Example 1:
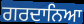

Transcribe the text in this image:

ਗਰਦਾਨਿਆ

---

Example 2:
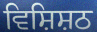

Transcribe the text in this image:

ਵਿਸ਼ਿਸ਼ਠ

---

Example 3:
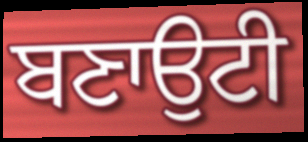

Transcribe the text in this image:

ਬਣਾਉਟੀ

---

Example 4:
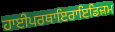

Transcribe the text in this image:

ਹਾਈਪਰਥਾਇਰਾਇਡਿਜ਼ਮ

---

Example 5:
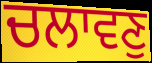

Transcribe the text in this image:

ਚਲਾਵਣੁ